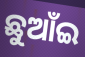
ଛୁଆଁଇ